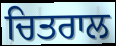
ਚਿਤਰਾਲ